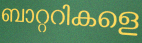
ബാറ്ററികളെ